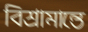
বিশ্রামান্তে